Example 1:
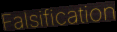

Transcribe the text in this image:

Falsification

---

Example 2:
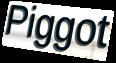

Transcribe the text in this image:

Piggot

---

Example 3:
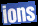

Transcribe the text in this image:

ions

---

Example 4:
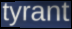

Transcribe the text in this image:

tyrant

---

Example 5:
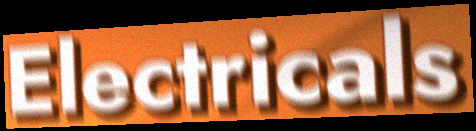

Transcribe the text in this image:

Electricals